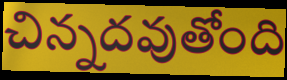
చిన్నదవుతోంది